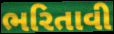
ભરિતાવી